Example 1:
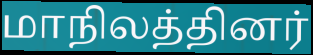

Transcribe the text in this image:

மாநிலத்தினர்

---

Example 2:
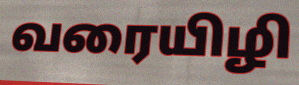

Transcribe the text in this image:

வரையிழி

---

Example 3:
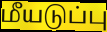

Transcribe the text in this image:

மீயடுப்பு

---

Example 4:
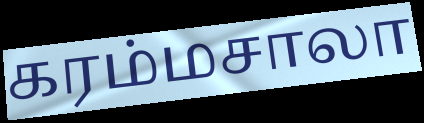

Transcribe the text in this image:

கரம்மசாலா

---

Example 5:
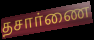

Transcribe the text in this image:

தசார்ணை